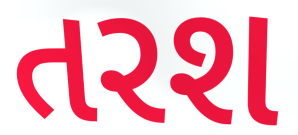
તરશ